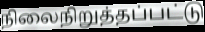
நிலைநிறுத்தப்பட்டு